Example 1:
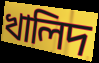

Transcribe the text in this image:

খালিদ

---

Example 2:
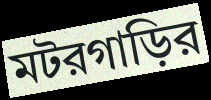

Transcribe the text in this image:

মটরগাড়ির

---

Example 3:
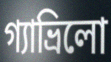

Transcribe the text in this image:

গ্যাভ্রিলো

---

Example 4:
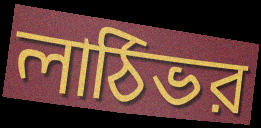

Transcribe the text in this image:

লাঠিভর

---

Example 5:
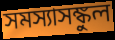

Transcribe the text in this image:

সমস্যাসঙ্কুল